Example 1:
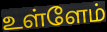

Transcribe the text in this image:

உள்ளேம்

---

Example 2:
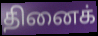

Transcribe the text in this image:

தினைக்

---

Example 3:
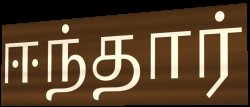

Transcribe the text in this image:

ஈந்தார்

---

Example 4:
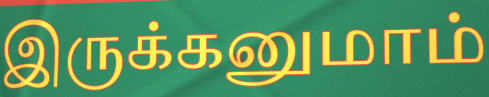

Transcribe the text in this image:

இருக்கனுமாம்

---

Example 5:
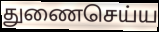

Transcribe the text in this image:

துணைசெய்ய